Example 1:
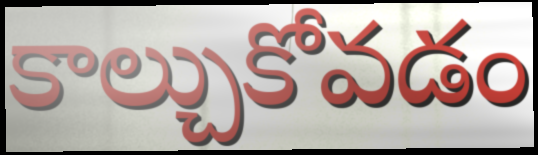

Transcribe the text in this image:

కాల్చుకోవడం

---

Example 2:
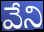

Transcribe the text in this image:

వేని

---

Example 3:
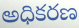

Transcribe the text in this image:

అధికరణ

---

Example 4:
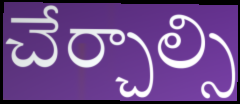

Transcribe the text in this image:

చేర్చాల్సి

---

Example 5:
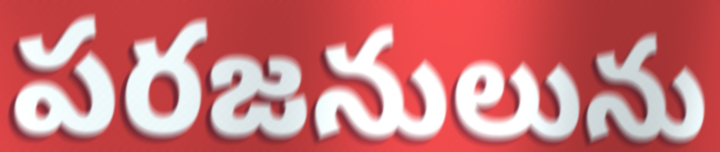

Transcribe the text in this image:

పరజనులును